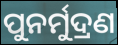
ପୁନର୍ମୁଦ୍ରଣ